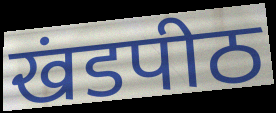
खंडपीठ